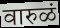
वारुळं